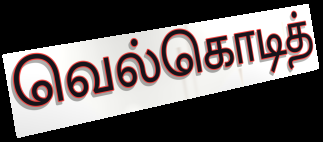
வெல்கொடித்